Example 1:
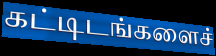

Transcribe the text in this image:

கட்டிடங்களைச்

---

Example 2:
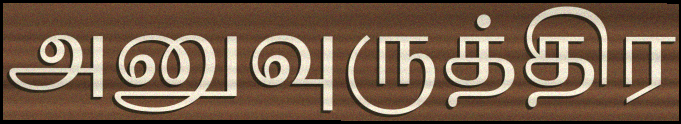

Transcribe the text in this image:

அனுவுருத்திர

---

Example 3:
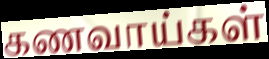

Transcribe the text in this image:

கணவாய்கள்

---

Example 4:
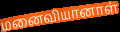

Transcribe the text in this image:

மனைவியானாள்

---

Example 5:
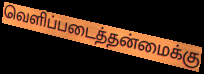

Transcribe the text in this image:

வெளிப்படைத்தன்மைக்கு